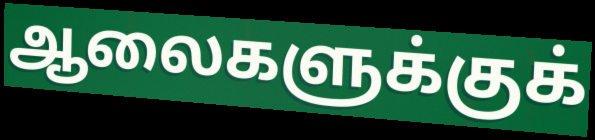
ஆலைகளுக்குக்